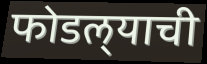
फोडल्याची